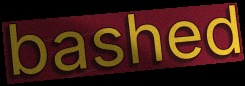
bashed